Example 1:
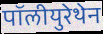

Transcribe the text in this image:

पॉलीयुरेथेन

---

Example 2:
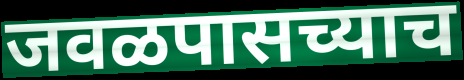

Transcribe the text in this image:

जवळपासच्याच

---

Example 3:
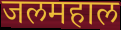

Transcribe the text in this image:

जलमहाल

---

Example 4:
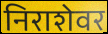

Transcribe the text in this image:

निराशेवर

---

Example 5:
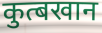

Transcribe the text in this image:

कुत्बखान